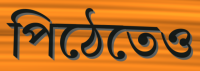
পিঠেতেও